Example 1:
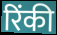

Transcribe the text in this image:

रिंकी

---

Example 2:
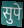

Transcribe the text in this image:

सुपे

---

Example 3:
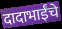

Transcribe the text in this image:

दादाभाईंचे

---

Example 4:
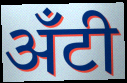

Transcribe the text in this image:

अँटी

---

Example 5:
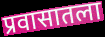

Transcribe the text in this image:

प्रवासातला